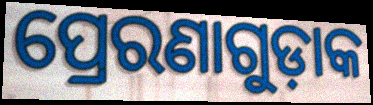
ପ୍ରେରଣାଗୁଡ଼ାକ